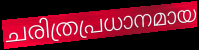
ചരിത്രപ്രധാനമായ